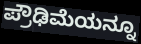
ಪ್ರೌಢಿಮೆಯನ್ನೂ